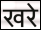
खरे